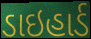
ડાઇહાર્ડ